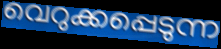
വെറുക്കപ്പെടുന്ന